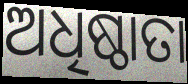
ଅଧିଷ୍ଠାତା